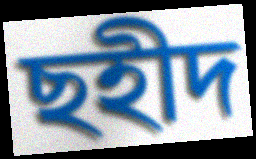
ছহীদ